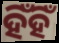
ହିଁହିଁ